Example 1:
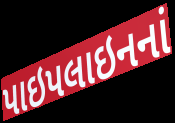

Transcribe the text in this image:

પાઇપલાઇનનાં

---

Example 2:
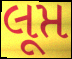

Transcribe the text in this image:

લૂપ્ત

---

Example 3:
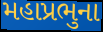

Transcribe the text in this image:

મહાપ્રભુના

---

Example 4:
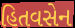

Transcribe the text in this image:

હિતવસેન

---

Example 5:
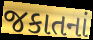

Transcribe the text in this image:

જકાતનાં